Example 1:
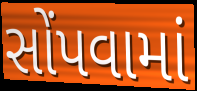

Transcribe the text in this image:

સોંપવામાં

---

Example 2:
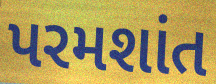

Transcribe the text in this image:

પરમશાંત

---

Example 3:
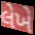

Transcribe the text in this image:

લેખે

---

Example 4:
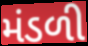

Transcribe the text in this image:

મંડળી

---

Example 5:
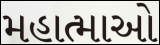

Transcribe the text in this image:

મહાત્માઓ